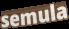
semula